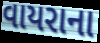
વાયરાના